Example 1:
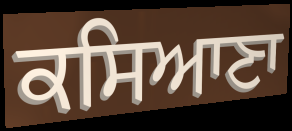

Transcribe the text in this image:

ਕਸਿਆਣਾ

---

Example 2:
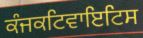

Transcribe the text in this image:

ਕੰਜਕਟਿਵਾਇਟਿਸ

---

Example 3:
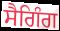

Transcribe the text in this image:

ਸੈਗਿੰਗ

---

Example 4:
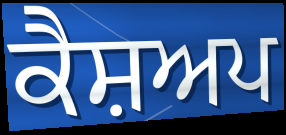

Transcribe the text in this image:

ਕੈਸ਼ਅਪ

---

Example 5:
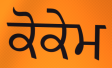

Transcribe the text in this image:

ਕੋਕੇਮ